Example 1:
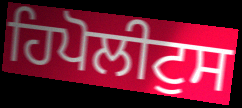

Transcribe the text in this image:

ਹਿਪੋਲੀਟੁਸ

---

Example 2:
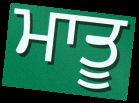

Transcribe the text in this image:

ਮਾਤੂ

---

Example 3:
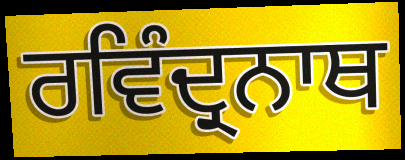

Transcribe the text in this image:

ਰਵਿੰਦ੍ਰਨਾਥ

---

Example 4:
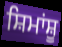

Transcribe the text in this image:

ਸ਼ਿਮਾਂਸ਼ੂ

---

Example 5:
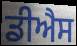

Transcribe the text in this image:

ਡੀਐਸ